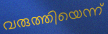
വരുത്തിയെന്ന്